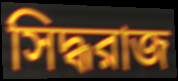
সিদ্ধরাজ